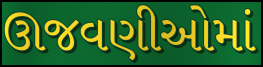
ઊજવણીઓમાં